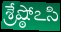
శ్రేష్ఠోఽసి